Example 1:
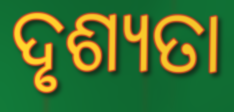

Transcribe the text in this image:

ଦୃଶ୍ୟତା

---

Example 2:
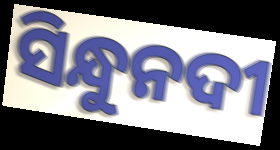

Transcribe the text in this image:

ସିନ୍ଧୁନଦୀ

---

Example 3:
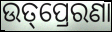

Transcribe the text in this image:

ଉତ୍‌ପ୍ରେରଣା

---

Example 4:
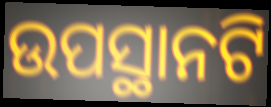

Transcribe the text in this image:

ଉପସ୍ଥାନଟି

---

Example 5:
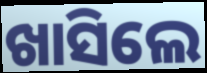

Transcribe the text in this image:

ଖାସିଲେ